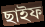
ছাইফ